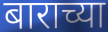
बाराच्या